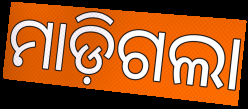
ମାଡ଼ିଗଲା